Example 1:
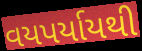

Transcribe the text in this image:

વયપર્યાયથી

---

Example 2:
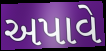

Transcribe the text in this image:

અપાવે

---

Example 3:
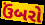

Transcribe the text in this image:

ઉંબરો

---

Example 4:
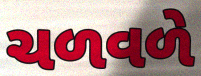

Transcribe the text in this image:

ચળવળે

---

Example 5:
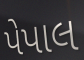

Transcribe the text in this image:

પેપાલ